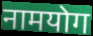
नामयोग